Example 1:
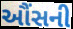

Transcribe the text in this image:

ઔંસની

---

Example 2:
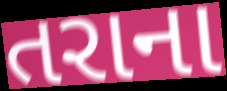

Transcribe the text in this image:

તરાના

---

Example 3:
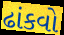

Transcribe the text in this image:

ઢાંકવો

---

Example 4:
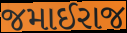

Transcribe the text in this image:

જમાઈરાજ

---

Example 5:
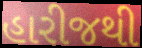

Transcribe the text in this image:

હારીજથી